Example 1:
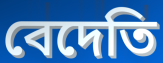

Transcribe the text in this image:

বেদেতি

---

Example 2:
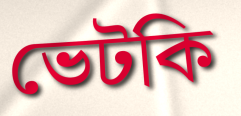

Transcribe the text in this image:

ভেটকি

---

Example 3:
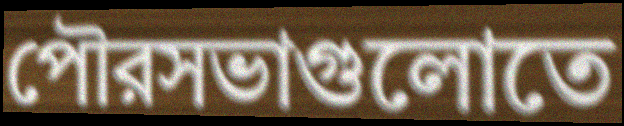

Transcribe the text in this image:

পৌরসভাগুলোতে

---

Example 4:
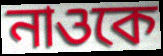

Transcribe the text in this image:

নাওকে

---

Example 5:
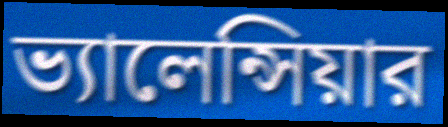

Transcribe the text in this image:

ভ্যালেন্সিয়ার